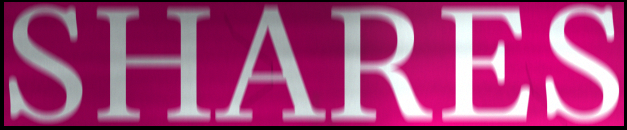
SHARES